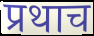
प्रथाच